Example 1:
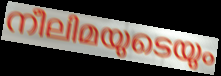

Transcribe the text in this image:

നീലിമയുടെയും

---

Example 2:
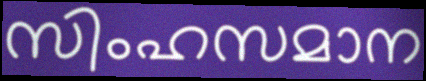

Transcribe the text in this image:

സിംഹസമാന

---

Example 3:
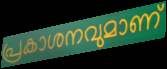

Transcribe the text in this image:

പ്രകാശനവുമാണ്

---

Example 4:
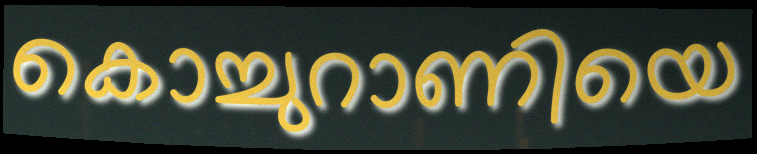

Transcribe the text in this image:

കൊച്ചുറാണിയെ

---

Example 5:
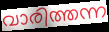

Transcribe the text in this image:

വാരിത്തന്ന